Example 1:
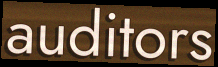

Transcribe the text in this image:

auditors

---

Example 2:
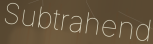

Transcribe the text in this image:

Subtrahend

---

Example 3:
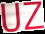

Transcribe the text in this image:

UZ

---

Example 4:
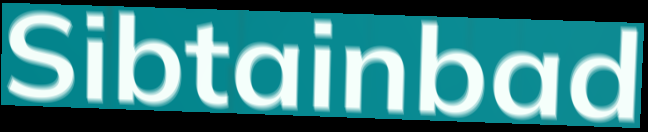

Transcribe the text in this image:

Sibtainbad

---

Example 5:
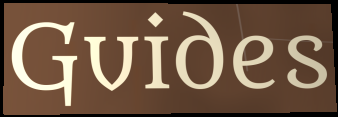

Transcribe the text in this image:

Guides